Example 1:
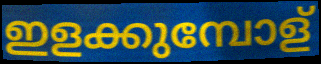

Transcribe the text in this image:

ഇളക്കുമ്പോള്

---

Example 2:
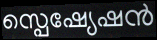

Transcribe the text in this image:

സ്പെഷ്യേഷൻ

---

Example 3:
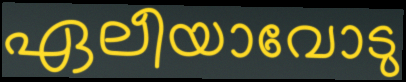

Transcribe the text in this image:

ഏലീയാവോടു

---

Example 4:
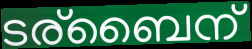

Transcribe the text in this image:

ടര്ബൈന്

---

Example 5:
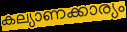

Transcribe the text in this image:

കല്യാണക്കാര്യം